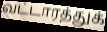
வட்டாரத்துக்